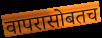
वापरासोबतच